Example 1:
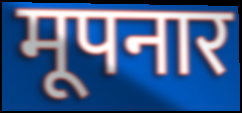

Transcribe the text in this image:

मूपनार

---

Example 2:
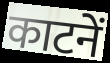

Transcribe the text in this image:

काटनें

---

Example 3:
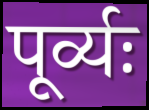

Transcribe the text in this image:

पूर्व्यः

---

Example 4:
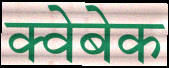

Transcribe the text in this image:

क्वेबेक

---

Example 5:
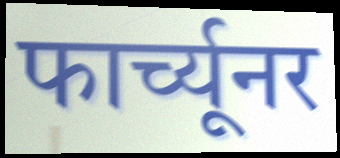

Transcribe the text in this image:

फार्च्यूनर